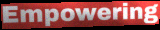
Empowering